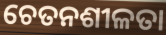
ଚେତନଶୀଳତା